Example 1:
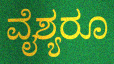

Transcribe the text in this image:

ವೈಶ್ಯರೂ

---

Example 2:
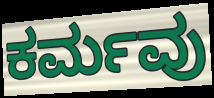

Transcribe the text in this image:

ಕರ್ಮವು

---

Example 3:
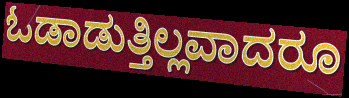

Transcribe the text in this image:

ಓಡಾಡುತ್ತಿಲ್ಲವಾದರೂ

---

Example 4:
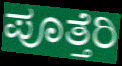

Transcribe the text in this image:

ಪೂತ್ತೆರಿ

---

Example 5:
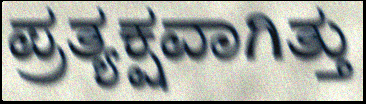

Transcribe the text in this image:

ಪ್ರತ್ಯಕ್ಷವಾಗಿತ್ತು